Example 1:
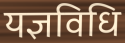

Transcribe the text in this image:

यज्ञविधि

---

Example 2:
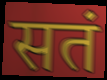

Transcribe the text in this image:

सतं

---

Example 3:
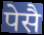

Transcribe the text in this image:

पेसै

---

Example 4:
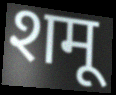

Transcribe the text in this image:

शमू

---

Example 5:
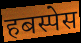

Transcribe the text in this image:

हबस्पेस